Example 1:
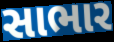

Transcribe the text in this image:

સાભાર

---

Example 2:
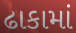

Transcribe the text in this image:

ઢાકામાં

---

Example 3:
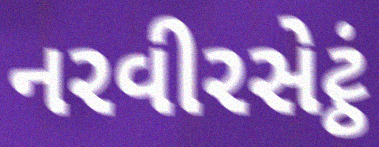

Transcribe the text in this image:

નરવીરસેટ્ઠં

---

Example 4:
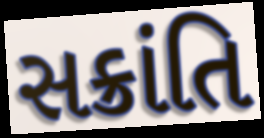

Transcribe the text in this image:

સક્રાંતિ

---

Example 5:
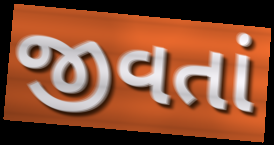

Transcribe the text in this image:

જીવતાં